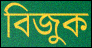
বিজুক